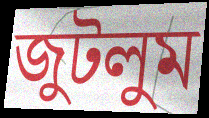
জুটলুম